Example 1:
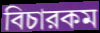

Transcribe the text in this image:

বিচারকম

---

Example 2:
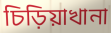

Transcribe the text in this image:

চিড়িয়াখানা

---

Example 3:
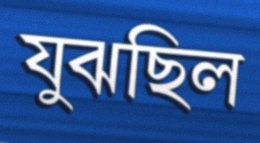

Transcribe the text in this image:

যুঝছিল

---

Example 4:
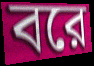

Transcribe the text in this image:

বরে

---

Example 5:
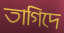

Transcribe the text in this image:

তাগিদে